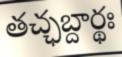
తచ్ఛబ్దార్థః